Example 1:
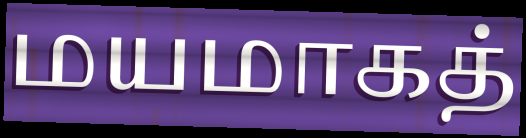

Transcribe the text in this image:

மயமாகத்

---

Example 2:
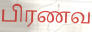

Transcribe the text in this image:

பிரணவ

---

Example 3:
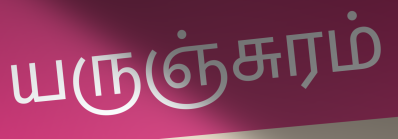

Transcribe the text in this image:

யருஞ்சுரம்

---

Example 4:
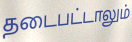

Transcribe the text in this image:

தடைபட்டாலும்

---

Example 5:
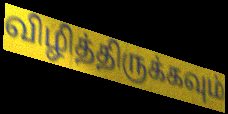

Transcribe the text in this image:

விழித்திருக்கவும்